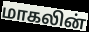
மாகலின்